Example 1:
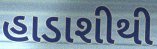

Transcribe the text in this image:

હાડાશીથી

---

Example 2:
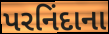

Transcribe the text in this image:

પરનિંદાના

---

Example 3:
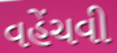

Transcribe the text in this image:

વહેંચવી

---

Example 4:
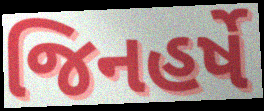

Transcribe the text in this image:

જિનહર્ષે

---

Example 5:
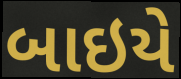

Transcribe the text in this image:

બાઇયે